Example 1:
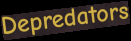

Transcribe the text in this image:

Depredators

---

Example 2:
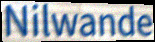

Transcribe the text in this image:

Nilwande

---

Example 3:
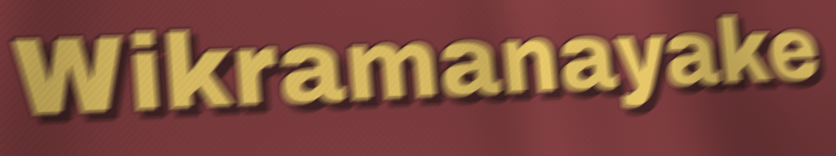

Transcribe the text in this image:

Wikramanayake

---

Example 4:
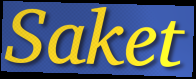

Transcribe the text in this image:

Saket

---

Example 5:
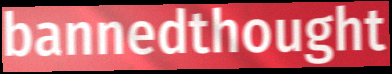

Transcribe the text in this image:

bannedthought